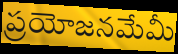
ప్రయోజనమేమీ